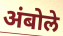
अंबोले